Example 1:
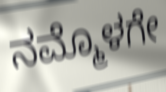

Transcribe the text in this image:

ನಮ್ಮೊಳಗೇ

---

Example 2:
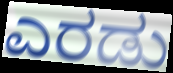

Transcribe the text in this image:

ಎರಡು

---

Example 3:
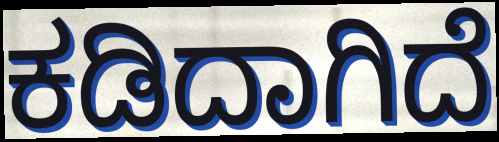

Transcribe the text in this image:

ಕಡಿದಾಗಿದೆ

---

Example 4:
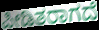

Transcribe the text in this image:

ಪೀಡಿತರಾಗದೆ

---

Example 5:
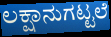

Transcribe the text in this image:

ಲಕ್ಷಾನುಗಟ್ಟಲೆ